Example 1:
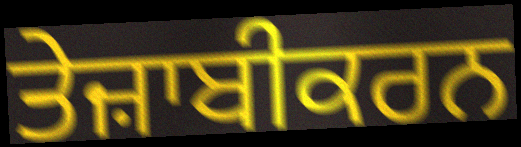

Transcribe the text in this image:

ਤੇਜ਼ਾਬੀਕਰਨ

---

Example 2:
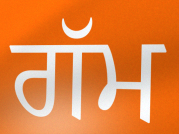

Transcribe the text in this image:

ਗੱਮ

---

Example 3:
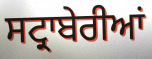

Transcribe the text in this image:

ਸਟ੍ਰਾਬੇਰੀਆਂ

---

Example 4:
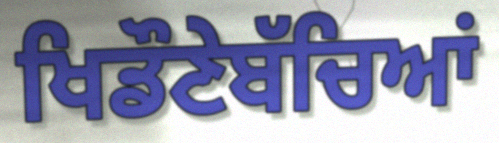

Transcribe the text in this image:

ਖਿਡੌਣੇਬੱਚਿਆਂ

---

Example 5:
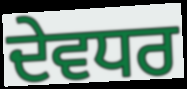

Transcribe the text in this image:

ਦੇਵਧਰ